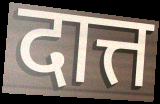
दात्त